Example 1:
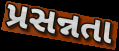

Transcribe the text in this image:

પ્રસન્નતા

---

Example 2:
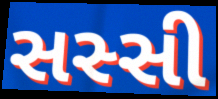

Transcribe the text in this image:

સસ્સી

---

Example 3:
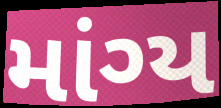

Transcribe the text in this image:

માંગ્ય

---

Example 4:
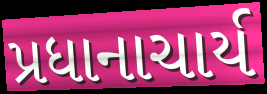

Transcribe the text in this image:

પ્રધાનાચાર્ય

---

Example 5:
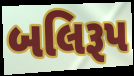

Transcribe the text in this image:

બલિરૂપ